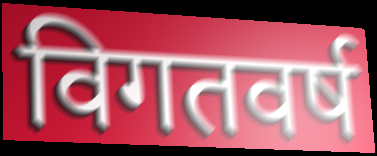
विगतवर्ष